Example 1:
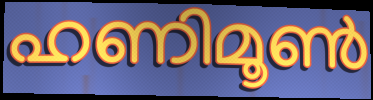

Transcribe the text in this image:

ഹണിമൂൺ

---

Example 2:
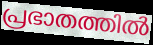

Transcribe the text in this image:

പ്രഭാതത്തിൽ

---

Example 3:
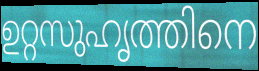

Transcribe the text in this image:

ഉറ്റസുഹൃത്തിനെ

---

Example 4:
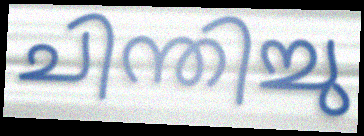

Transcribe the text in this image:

ചിന്തിച്ചു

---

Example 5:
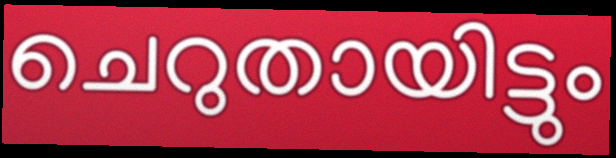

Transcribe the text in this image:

ചെറുതായിട്ടും